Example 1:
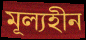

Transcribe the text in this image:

মূল্যহীন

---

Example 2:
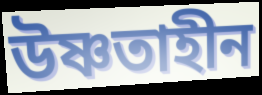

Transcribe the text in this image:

উষ্ণতাহীন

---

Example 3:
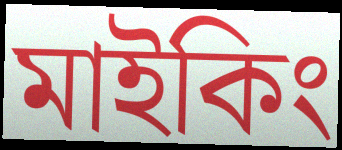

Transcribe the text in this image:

মাইকিং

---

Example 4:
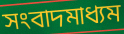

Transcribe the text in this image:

সংবাদমাধ্যম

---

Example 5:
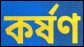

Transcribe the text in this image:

কর্ষণ